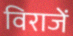
विराजें